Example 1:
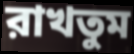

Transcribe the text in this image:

রাখতুম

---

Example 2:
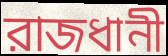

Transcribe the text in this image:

রাজধানী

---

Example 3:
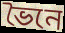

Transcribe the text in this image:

ভৈনে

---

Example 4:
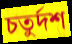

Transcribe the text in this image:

চতুর্দশ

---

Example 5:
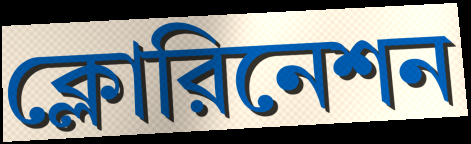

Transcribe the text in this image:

ক্লোরিনেশন